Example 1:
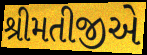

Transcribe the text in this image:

શ્રીમતીજીએ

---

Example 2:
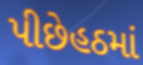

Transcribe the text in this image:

પીછેહઠમાં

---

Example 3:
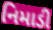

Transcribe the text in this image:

નિમાડી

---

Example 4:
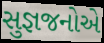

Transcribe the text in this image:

સુજ્ઞજનોએ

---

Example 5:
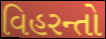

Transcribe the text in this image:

વિહરન્તો